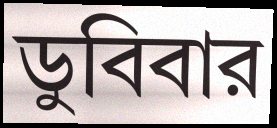
ডুবিবার